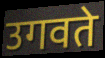
उगवते